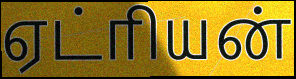
ஏட்ரியன்